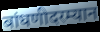
बांधणीदरम्यान